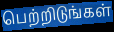
பெற்றிடுங்கள்